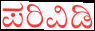
ಪರಿವಿಡಿ